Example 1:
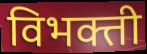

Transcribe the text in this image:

विभक्ती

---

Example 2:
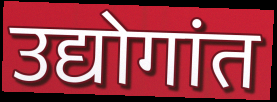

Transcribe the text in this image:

उद्योगांत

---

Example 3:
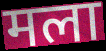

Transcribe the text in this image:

मला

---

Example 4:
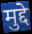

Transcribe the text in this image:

मुद्दे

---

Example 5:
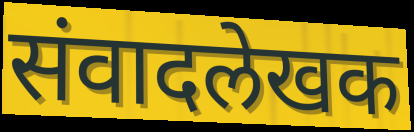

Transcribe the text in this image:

संवादलेखक